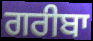
ਗਰੀਬਾ